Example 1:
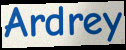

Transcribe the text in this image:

Ardrey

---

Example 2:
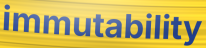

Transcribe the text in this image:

immutability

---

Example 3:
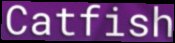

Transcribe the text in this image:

Catfish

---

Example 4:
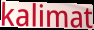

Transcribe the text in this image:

kalimat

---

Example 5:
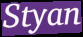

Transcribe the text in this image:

Styan